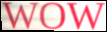
WOW